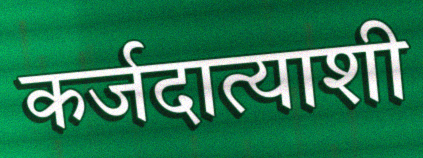
कर्जदात्याशी